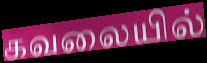
கவலையில்